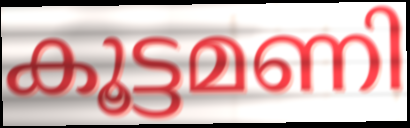
കൂട്ടമണി